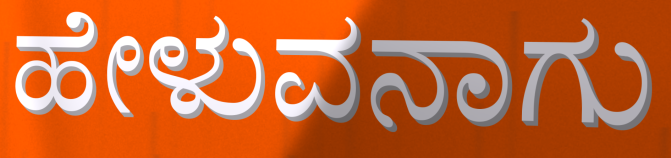
ಹೇಳುವನಾಗು